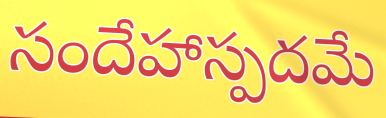
సందేహాస్పదమే